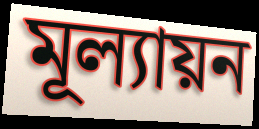
মূল্যায়ন